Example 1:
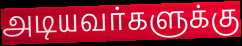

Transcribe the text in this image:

அடியவர்களுக்கு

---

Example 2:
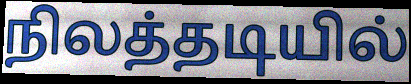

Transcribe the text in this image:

நிலத்தடியில்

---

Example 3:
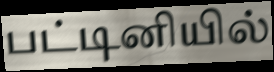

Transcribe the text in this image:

பட்டினியில்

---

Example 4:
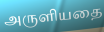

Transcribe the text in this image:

அருளியதை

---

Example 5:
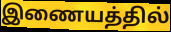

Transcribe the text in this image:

இணையத்தில்